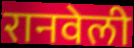
रानवेली